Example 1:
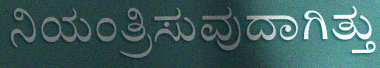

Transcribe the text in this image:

ನಿಯಂತ್ರಿಸುವುದಾಗಿತ್ತು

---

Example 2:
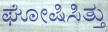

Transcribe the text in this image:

ಘೋಷಿಸಿತ್ತು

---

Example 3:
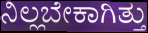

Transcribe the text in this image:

ನಿಲ್ಲಬೇಕಾಗಿತ್ತು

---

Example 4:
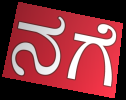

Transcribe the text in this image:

ನಗೆ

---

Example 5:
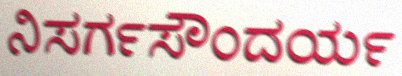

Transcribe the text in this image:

ನಿಸರ್ಗಸೌಂದರ್ಯ